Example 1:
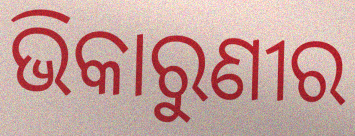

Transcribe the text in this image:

ଭିକାରୁଣୀର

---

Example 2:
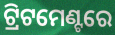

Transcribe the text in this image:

ଟ୍ରିଟମେଣ୍ଟରେ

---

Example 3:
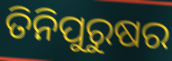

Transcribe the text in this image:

ତିନିପୁରୁଷର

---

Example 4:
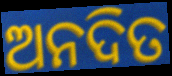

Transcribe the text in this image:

ଅନଦିତ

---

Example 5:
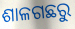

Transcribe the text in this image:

ଶାଳଗଛରୁ